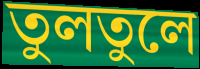
তুলতুলে